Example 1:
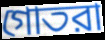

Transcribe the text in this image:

গোতরা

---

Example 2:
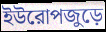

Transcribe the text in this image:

ইউরোপজুড়ে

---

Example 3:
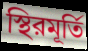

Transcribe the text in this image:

স্থিরমূর্তি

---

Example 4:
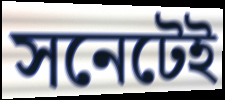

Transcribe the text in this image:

সনেটেই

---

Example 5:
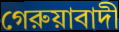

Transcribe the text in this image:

গেরুয়াবাদী